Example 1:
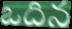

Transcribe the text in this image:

ఒదిన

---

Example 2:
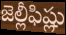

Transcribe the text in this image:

జెల్లీఫిష్లు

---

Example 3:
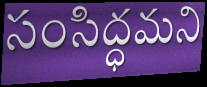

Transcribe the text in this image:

సంసిద్ధమని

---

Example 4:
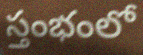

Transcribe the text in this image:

స్తంభంలో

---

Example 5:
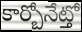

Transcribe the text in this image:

కార్బోనేట్తో